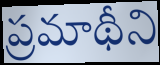
ప్రమాథీని